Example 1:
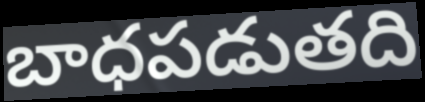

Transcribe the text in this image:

బాధపడుతది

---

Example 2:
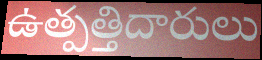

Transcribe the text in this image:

ఉత్పత్తిదారులు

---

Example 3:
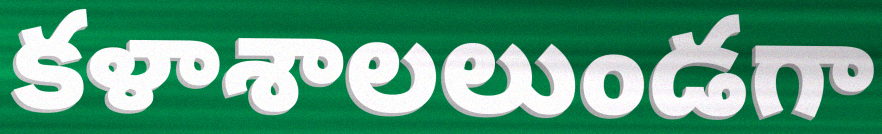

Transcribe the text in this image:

కళాశాలలుండగా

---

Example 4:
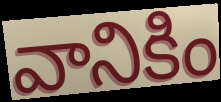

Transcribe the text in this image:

వానికిం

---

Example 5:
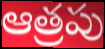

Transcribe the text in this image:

ఆత్రపు